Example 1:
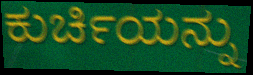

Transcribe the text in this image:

ಕುರ್ಚಿಯನ್ನು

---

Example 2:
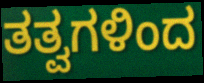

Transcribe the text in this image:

ತತ್ವಗಳಿಂದ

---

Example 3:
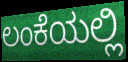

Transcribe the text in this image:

ಲಂಕೆಯಲ್ಲಿ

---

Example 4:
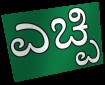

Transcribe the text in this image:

ಎಚ್ಪಿ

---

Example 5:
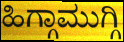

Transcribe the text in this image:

ಹಿಗ್ಗಾಮುಗ್ಗಿ